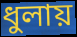
ধুলায়